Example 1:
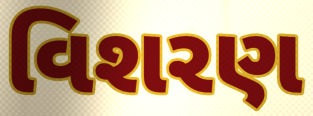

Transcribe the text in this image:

વિશરણ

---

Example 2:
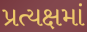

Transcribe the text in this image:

પ્રત્‍યક્ષમાં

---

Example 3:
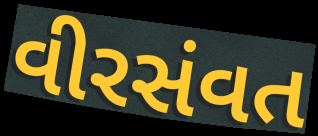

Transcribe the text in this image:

વીરસંવત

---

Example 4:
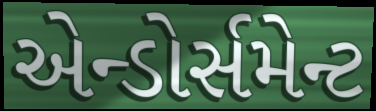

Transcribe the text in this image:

એન્ડોર્સમેન્ટ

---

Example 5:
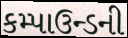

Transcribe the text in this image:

કમ્પાઉન્ડની